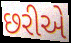
છરીએ